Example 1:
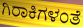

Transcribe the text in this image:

ಗಿರಾಕಿಗಳಂತೆ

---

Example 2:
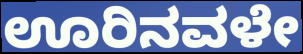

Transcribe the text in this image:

ಊರಿನವಳೇ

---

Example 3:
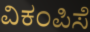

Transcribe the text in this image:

ವಿಕಂಪಿಸೆ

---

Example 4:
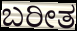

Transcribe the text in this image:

ಬರೀತ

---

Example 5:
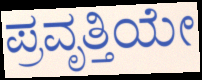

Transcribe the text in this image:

ಪ್ರವೃತ್ತಿಯೇ